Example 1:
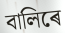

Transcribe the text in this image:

বালিৰে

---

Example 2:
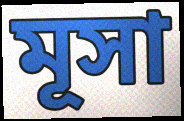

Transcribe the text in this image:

মূসা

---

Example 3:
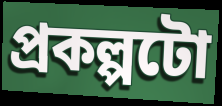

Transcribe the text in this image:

প্ৰকল্পটো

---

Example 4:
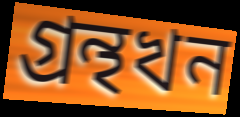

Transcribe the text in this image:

গ্ৰন্থখন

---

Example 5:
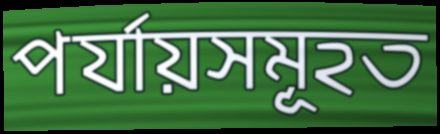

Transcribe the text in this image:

পৰ্যায়সমূহত